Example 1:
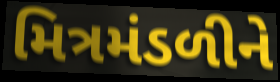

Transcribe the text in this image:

મિત્રમંડળીને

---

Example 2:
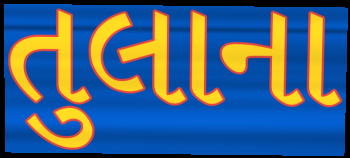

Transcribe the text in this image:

તુલાના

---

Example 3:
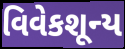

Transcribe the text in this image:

વિવેકશૂન્ય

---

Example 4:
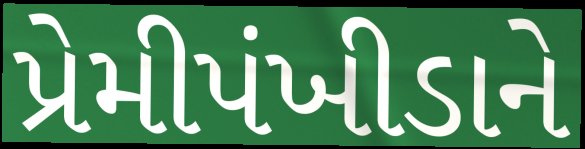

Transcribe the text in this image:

પ્રેમીપંખીડાને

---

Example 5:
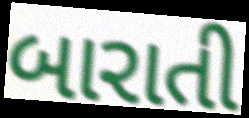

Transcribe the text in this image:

બારાતી